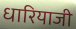
धारियाजी